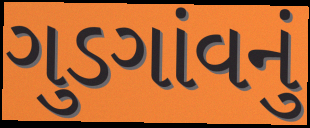
ગુડગાંવનું